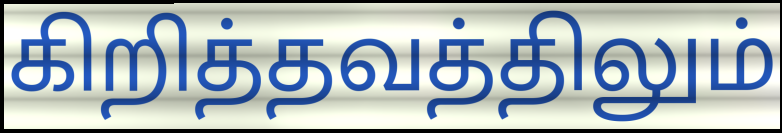
கிறித்தவத்திலும்